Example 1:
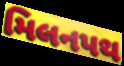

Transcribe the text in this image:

મિલનપથ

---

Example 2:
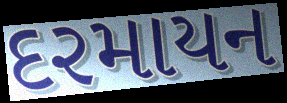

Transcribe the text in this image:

દરમાયન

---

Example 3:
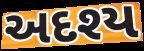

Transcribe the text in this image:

અદશ્ય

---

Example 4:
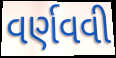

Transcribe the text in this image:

વર્ણવવી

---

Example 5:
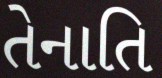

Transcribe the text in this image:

તેનાતિ